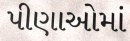
પીણાઓમાં